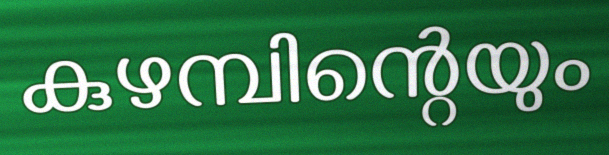
കുഴമ്പിന്റെയും